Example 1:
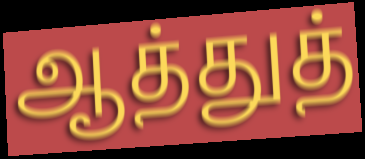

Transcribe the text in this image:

ஆத்துத்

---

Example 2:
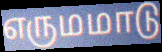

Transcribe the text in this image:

எருமமாடு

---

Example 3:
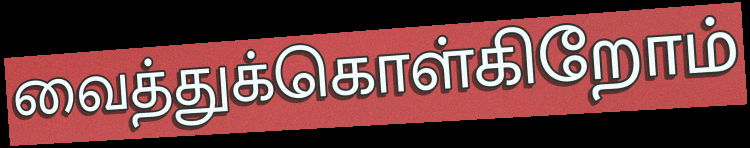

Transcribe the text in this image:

வைத்துக்கொள்கிறோம்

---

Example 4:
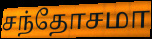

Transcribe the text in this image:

சந்தோசமா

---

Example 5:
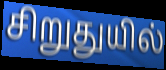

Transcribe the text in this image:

சிறுதுயில்